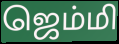
ஜெம்மி